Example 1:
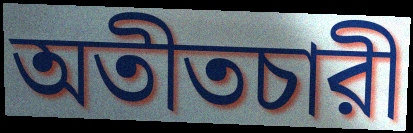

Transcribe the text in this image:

অতীতচারী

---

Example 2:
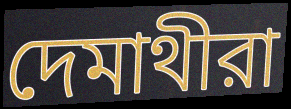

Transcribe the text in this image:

দেমাথীরা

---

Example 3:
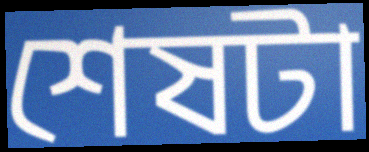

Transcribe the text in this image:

শেষটা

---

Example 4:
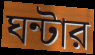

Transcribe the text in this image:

ঘন্টার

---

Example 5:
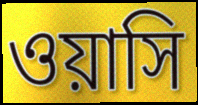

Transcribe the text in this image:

ওয়াসি